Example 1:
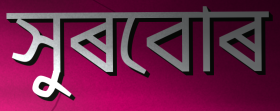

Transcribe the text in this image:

সুৰবোৰ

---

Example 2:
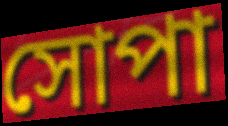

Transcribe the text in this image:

সোপা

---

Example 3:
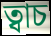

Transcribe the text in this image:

ত্বাচ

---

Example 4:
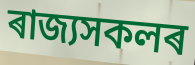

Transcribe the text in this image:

ৰাজ্যসকলৰ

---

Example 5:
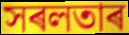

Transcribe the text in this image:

সৰলতাৰ